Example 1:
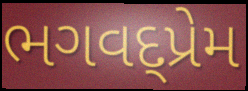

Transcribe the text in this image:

ભગવદ્પ્રેમ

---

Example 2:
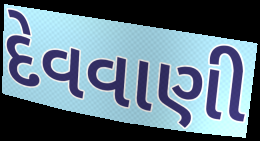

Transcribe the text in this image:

દેવવાણી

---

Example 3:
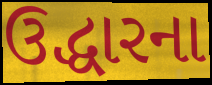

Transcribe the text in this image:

ઉદ્ધારના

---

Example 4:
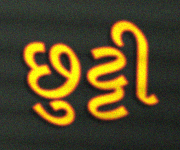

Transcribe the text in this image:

છુટ્ટી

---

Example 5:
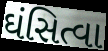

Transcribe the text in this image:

ઘંસિત્વા